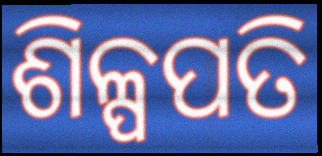
ଶିଳ୍ପପତି